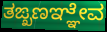
ತಙ್ಖಣಞ್ಞೇವ